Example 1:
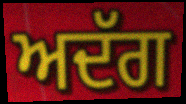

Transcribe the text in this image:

ਅਦੱਗ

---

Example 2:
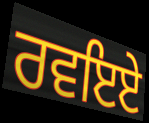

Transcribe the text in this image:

ਰਵਇਏ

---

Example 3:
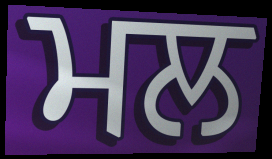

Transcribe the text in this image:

ਮਲ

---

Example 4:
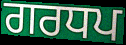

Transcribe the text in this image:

ਗਰਧਪ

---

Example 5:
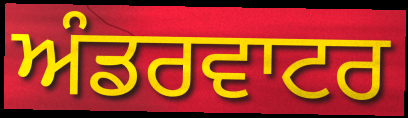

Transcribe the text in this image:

ਅੰਡਰਵਾਟਰ